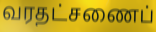
வரதட்சணைப்